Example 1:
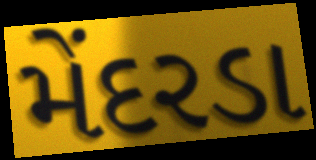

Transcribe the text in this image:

મેંદરડા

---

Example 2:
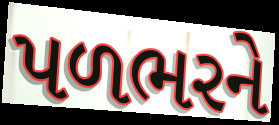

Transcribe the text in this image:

પળભરને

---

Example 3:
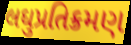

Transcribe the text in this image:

લઘુપ્રતિક્રમણ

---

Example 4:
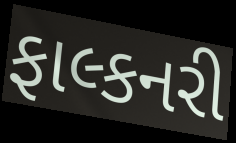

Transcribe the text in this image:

ફાલ્કનરી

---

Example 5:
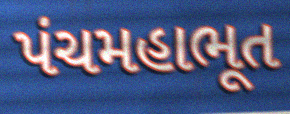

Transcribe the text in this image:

પંચમહાભૂત